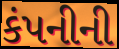
કંપનીની